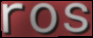
ros